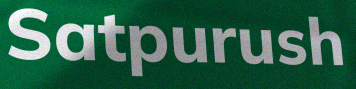
Satpurush